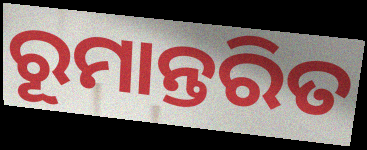
ରୂମାନ୍ତରିତ